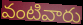
వంటివారు